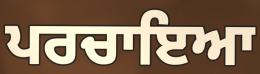
ਪਰਚਾਇਆ